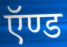
ऍण्ड